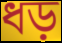
ধড়